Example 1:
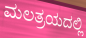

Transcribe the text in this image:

ಮಲತ್ರಯದಲ್ಲಿ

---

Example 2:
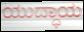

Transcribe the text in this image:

ಯುದ್ಧಾಯ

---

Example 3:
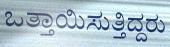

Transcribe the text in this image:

ಒತ್ತಾಯಿಸುತ್ತಿದ್ದರು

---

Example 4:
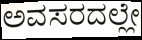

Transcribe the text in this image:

ಅವಸರದಲ್ಲೇ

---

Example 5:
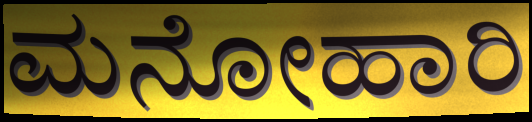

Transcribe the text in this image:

ಮನೋಹಾರಿ